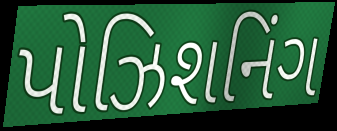
પોઝિશનિંગ